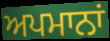
ਅਪਮਾਨਾਂ